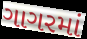
ગાગરમાં